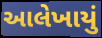
આલેખાયું